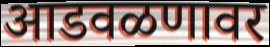
आडवळणावर